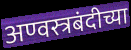
अण्वस्त्रबंदीच्या